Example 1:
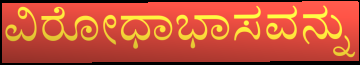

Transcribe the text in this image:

ವಿರೋಧಾಭಾಸವನ್ನು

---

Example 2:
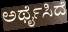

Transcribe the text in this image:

ಅರ್ಥೈಸಿದೆ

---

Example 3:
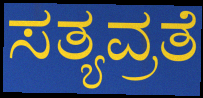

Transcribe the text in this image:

ಸತ್ಯವ್ರತೆ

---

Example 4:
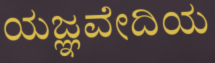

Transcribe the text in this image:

ಯಜ್ಞವೇದಿಯ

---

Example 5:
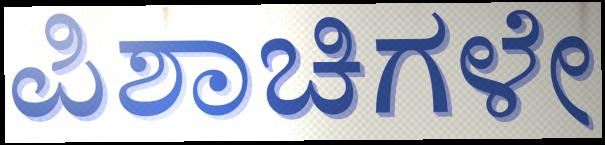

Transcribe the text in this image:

ಪಿಶಾಚಿಗಳೇ